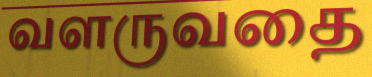
வளருவதை